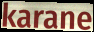
karane